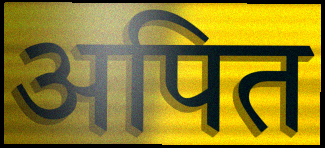
अपित